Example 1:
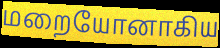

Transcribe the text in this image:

மறையோனாகிய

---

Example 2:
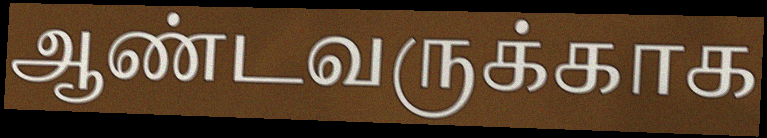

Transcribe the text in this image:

ஆண்டவருக்காக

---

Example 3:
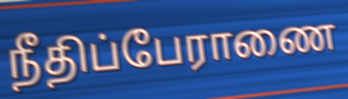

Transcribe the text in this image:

நீதிப்பேராணை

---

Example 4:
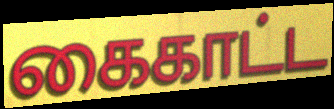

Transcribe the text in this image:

கைகாட்ட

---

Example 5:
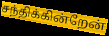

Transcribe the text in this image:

சந்திக்கின்றேன்